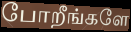
போறீங்களே